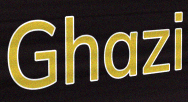
Ghazi